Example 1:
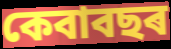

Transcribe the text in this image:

কেবাবছৰ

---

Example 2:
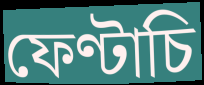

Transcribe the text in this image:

ফেণ্টাচি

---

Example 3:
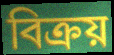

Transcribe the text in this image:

বিক্ৰয়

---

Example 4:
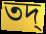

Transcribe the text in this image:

তদ্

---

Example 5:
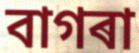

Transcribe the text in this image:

বাগৰা